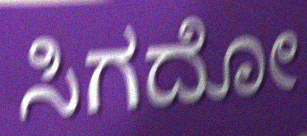
ಸಿಗದೋ